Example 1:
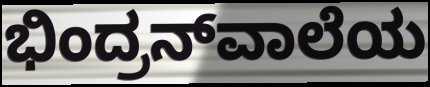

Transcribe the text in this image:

ಭಿಂದ್ರನ್‌ವಾಲೆಯ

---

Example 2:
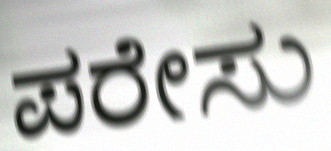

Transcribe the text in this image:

ಪರೇಸು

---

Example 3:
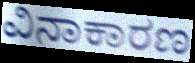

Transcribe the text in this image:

ವಿನಾಕಾರಣ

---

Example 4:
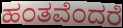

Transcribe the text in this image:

ಹಂತವೆಂದರೆ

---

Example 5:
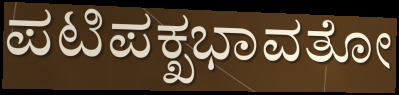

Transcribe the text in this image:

ಪಟಿಪಕ್ಖಭಾವತೋ